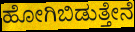
ಹೋಗಿಬಿಡುತ್ತೇನೆ